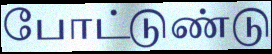
போட்டுண்டு